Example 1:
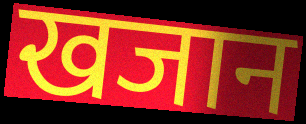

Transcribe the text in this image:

खजान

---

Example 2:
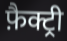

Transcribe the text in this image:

फ़ैक्ट्री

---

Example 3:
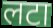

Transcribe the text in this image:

लटा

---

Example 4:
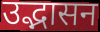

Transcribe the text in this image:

उद्भासन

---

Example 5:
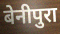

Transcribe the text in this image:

बेनीपुरा